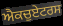
ਐਕਚੁਏਟਰਸ